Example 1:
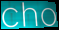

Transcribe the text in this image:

cho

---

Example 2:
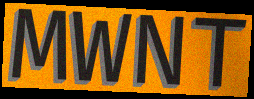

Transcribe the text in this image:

MWNT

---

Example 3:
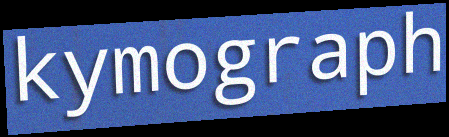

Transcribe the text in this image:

kymograph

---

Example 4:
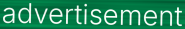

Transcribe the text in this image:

advertisement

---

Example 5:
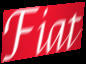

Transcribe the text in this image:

Fiat